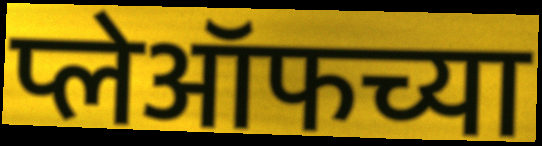
प्लेऑफच्या